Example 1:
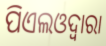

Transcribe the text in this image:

ପିଏଲଓଦ୍ୱାରା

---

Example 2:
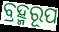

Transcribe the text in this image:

ବ୍ରହ୍ମରୂପ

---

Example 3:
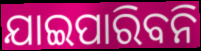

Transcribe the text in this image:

ଯାଇପାରିବନି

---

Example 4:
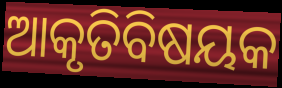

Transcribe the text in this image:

ଆକୃତିବିଷୟକ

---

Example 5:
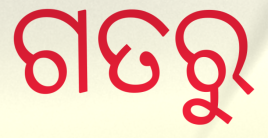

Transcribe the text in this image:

ଗତରୁ